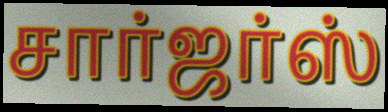
சார்ஜர்ஸ்